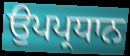
ਉਪਪ੍ਰਧਾਨ